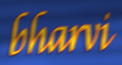
bharvi